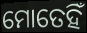
ମୋତେହିଁ